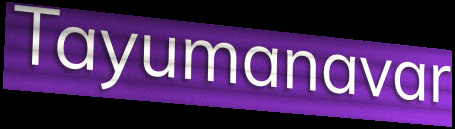
Tayumanavar